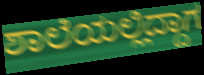
ಶಾಲೆಯಲ್ಲಿದ್ದಾಗ